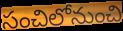
సంచిలోనుంచి